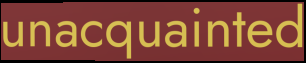
unacquainted